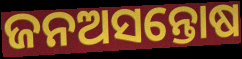
ଜନଅସନ୍ତୋଷ